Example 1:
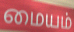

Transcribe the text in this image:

மையம்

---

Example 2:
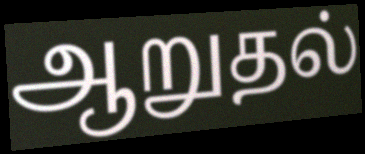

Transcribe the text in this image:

ஆறுதல்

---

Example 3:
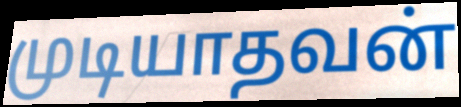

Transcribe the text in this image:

முடியாதவன்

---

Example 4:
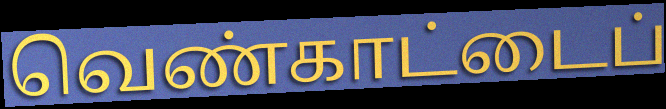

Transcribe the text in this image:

வெண்காட்டைப்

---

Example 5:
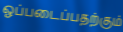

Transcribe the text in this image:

ஒப்படைப்பதற்கும்